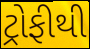
ટ્રોફીથી